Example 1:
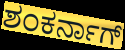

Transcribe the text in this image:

ಶಂಕರ್ನಾಗ್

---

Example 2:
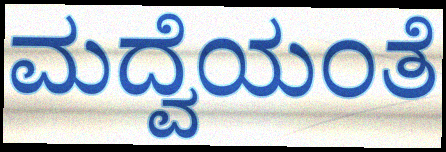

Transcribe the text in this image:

ಮದ್ವೆಯಂತೆ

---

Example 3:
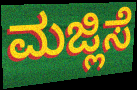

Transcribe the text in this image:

ಮಜ್ಲಿಸೆ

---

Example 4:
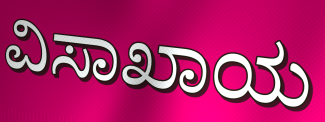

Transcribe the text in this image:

ವಿಸಾಖಾಯ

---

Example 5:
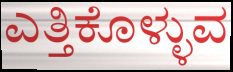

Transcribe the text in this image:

ಎತ್ತಿಕೊಳ್ಳುವ